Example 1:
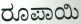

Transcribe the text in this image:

ರೂಪಾಯಿ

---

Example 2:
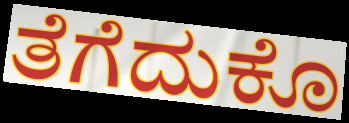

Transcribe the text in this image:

ತೆಗೆದುಕೊ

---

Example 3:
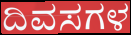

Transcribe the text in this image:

ದಿವಸಗಳ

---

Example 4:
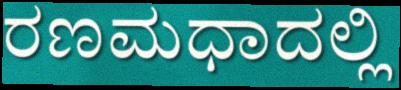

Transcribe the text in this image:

ರಣಮಧಾದಲ್ಲಿ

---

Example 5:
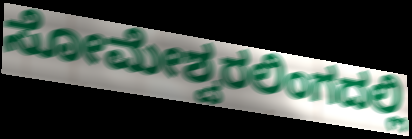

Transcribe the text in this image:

ಸೋಮೇಶ್ವರಲಿಂಗದಲ್ಲಿ